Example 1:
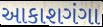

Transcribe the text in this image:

આકાશગંગા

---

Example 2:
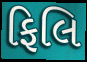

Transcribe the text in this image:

ફિલિ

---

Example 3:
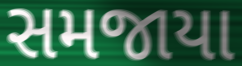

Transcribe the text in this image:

સમજાયા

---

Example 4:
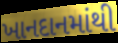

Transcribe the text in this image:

ખાનદાનમાંથી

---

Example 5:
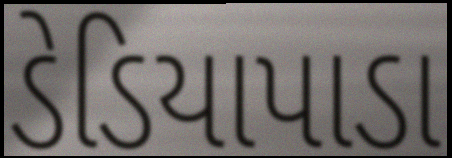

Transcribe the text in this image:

ડેડિયાપાડા